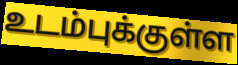
உடம்புக்குள்ள